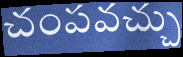
చంపవచ్చు